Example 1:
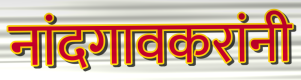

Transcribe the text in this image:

नांदगावकरांनी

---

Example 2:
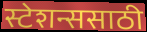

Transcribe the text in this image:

स्टेशन्ससाठी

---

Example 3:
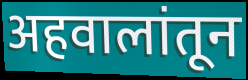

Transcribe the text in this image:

अहवालांतून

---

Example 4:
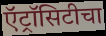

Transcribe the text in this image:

ऍट्रॉसिटीचा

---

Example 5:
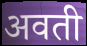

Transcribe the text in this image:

अवती